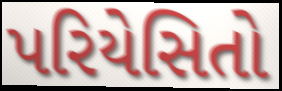
પરિયેસિતો